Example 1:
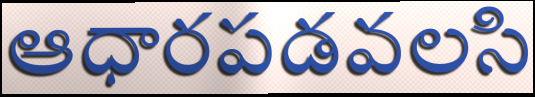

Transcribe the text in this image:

ఆధారపడవలసి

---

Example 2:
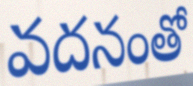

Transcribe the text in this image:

వదనంతో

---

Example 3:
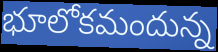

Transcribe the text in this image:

భూలోకమందున్న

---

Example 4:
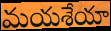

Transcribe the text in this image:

మయశేయా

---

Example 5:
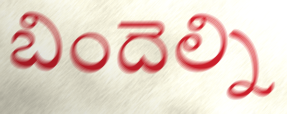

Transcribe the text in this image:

బిందెల్ని